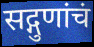
सद्गुणांचं